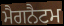
ਮੈਗਨੈਟਮ